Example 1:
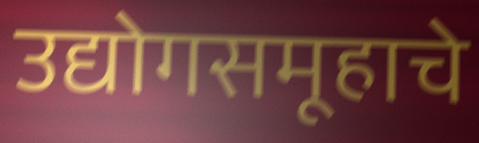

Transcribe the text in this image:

उद्योगसमूहाचे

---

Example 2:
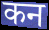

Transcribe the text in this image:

कन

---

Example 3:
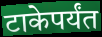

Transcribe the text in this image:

टाकेपर्यंत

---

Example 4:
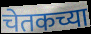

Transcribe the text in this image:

चेतकच्या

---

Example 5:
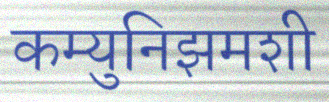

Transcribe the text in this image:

कम्युनिझमशी